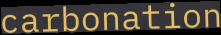
carbonation